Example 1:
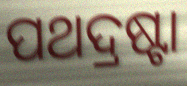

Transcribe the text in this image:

ପଥଦ୍ରଷ୍ଟା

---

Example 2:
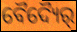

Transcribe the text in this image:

ବୈଦ୍ୟୈର୍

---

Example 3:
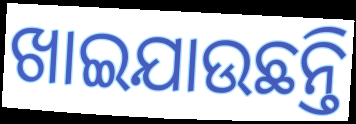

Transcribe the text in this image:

ଖାଇଯାଉଛନ୍ତି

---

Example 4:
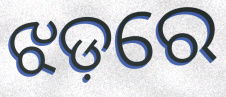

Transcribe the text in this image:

ଝଡ଼ରେ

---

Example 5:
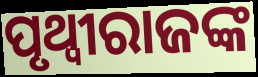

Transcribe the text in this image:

ପୃଥ୍ୱୀରାଜଙ୍କ